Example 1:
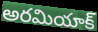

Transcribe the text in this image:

అరమియాక్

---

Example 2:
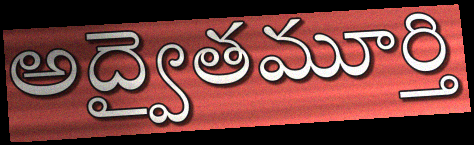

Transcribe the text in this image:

అద్వైతమూర్తి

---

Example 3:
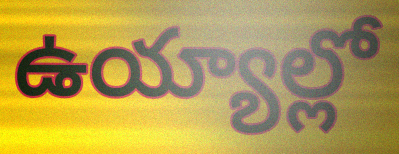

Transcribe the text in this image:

ఉయ్యాల్లో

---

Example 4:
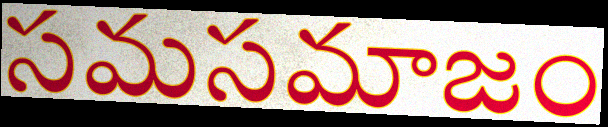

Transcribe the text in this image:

సమసమాజం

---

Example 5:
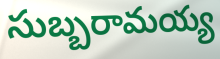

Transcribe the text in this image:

సుబ్బరామయ్య